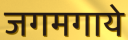
जगमगाये